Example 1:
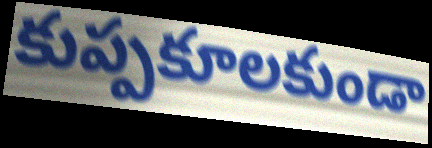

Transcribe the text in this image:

కుప్పకూలకుండా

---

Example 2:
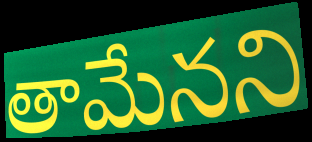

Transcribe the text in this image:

తామేనని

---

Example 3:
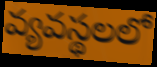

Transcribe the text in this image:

వ్యవస్థలలో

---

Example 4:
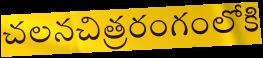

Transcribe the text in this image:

చలనచిత్రరంగంలోకి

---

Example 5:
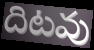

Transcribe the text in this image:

దిటవు